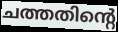
ചത്തതിന്റെ